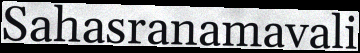
Sahasranamavali